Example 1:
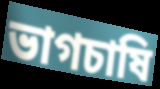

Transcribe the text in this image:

ভাগচাষি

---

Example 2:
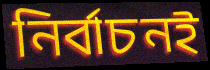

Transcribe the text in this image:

নির্বাচনই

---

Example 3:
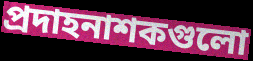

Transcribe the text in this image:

প্রদাহনাশকগুলো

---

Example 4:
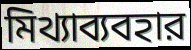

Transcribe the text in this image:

মিথ্যাব্যবহার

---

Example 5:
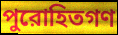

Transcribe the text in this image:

পুরোহিতগণ